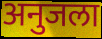
अनुजला